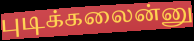
புடிக்கலைன்னு